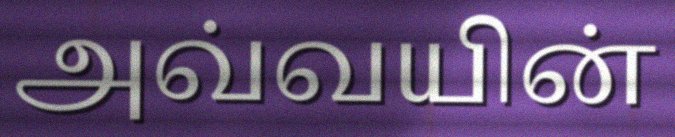
அவ்வயின்